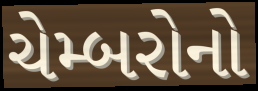
ચેમ્બરોનો